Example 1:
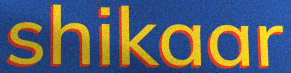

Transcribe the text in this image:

shikaar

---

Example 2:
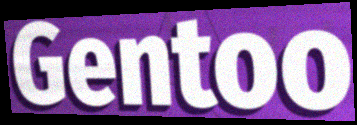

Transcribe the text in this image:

Gentoo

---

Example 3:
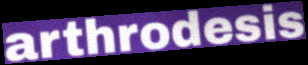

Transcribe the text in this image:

arthrodesis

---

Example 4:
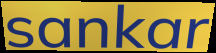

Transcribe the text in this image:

sankar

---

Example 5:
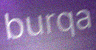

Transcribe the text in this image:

burqa